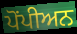
ਪੋਂਪੀਅਨ